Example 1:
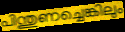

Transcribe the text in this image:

പിന്തുണച്ചെങ്കിലും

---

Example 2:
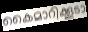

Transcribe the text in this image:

കൈമാറിക്കൂടാ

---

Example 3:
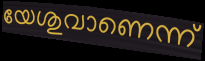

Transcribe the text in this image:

യേശുവാണെന്ന്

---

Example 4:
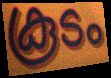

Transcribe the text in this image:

കൂടം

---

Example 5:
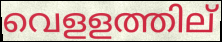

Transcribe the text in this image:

വെളളത്തില്